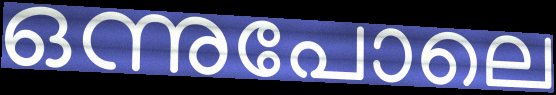
ഒന്നുപോലെ